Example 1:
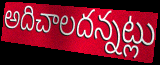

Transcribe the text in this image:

అదిచాలదన్నట్లు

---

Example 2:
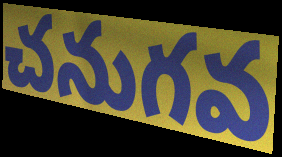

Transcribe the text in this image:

చనుగవ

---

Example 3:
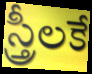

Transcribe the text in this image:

స్త్రీలకే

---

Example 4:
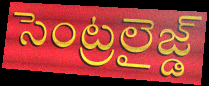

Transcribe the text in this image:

సెంట్రలైజ్డ్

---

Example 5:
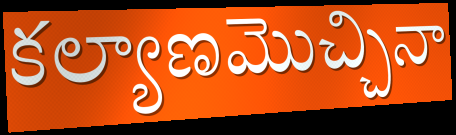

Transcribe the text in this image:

కల్యాణమొచ్చినా